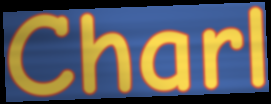
Charl